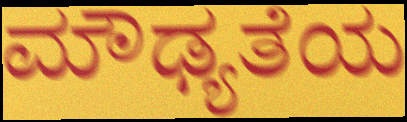
ಮೌಢ್ಯತೆಯ